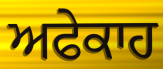
ਅਫੇਕਾਹ